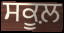
ਸਕੂਲ਼